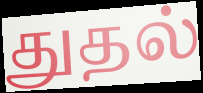
துதல்